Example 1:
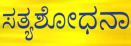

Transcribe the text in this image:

ಸತ್ಯಶೋಧನಾ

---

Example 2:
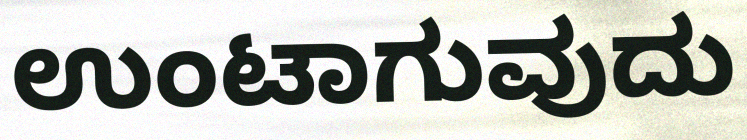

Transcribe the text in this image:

ಉಂಟಾಗುವುದು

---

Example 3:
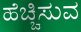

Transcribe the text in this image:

ಹೆಚ್ಚಿಸುವ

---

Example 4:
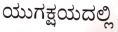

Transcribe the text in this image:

ಯುಗಕ್ಷಯದಲ್ಲಿ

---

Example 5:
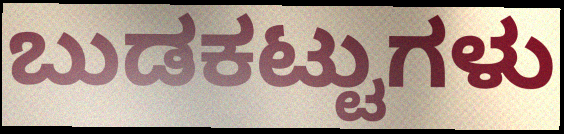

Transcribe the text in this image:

ಬುಡಕಟ್ಟುಗಳು